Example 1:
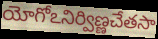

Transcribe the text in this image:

యోగోఽనిర్విణ్ణచేతసా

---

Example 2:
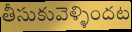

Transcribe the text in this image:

తీసుకువెళ్ళిందట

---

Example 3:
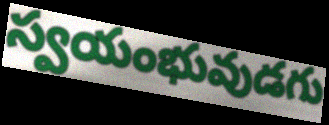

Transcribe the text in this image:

స్వయంభువుడగు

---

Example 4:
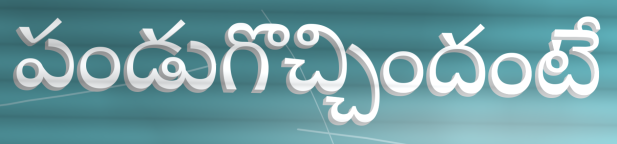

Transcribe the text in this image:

పండుగొచ్చిందంటే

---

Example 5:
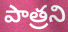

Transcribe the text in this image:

పాత్రని